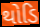
થોડિ